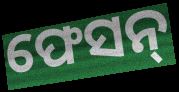
ଫେସନ୍